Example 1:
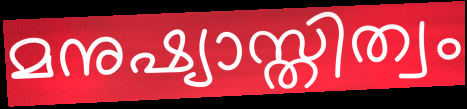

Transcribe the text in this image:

മനുഷ്യാസ്തിത്വം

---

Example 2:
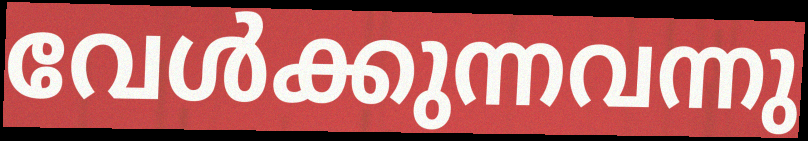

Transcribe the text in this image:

വേൾക്കുന്നവന്നു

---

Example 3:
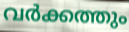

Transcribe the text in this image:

വർക്കത്തും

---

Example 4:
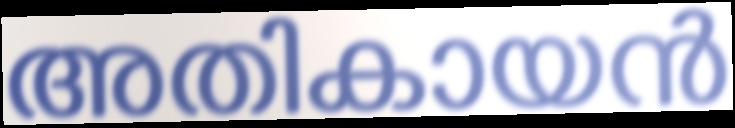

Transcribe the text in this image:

അതികായൻ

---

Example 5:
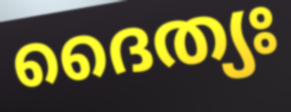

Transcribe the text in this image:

ദൈത്യഃ